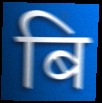
बि